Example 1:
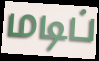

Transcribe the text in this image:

மடிப்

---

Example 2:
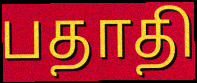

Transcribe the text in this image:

பதாதி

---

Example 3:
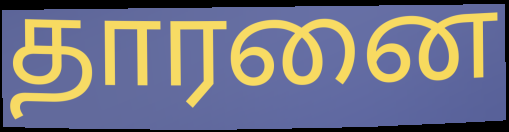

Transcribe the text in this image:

தாரனை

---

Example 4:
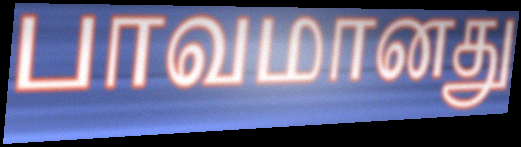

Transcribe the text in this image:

பாவமானது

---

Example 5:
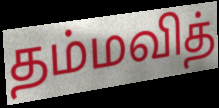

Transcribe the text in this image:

தம்மவித்